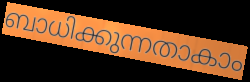
ബാധിക്കുന്നതാകാം